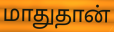
மாதுதான்